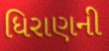
ધિરાણની